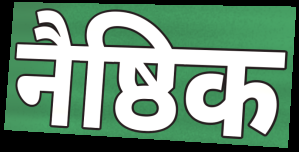
नैष्ठिक